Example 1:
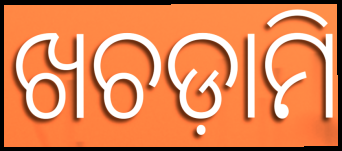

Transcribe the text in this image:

ଖଚଡ଼ାମି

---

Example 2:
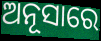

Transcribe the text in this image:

ଅନୂସାରେ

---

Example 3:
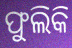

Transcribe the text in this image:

ଫୁଲିକି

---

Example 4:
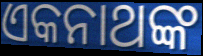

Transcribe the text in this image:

ଏକନାଥଙ୍କ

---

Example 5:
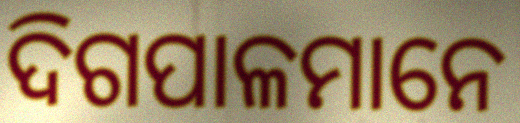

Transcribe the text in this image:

ଦିଗପାଳମାନେ